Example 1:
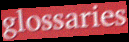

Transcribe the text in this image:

glossaries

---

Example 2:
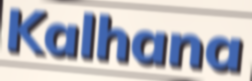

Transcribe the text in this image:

Kalhana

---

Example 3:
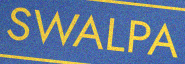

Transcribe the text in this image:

SWALPA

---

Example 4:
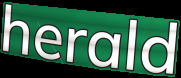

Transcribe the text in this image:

herald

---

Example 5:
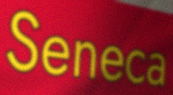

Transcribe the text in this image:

Seneca